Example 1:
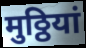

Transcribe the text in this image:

मुठ्ठियां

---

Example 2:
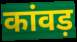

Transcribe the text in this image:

कांवड़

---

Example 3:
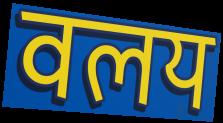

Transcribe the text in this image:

वलय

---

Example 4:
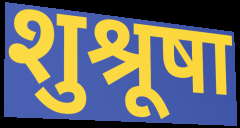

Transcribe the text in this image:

शुश्रूषा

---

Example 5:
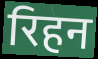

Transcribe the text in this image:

रिहन